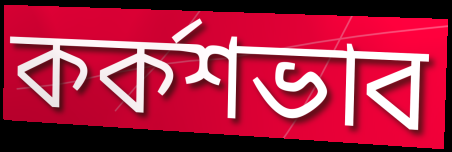
কর্কশভাব